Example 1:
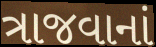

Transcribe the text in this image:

ત્રાજવાનાં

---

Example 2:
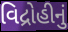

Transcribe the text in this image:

વિદ્રોહીનું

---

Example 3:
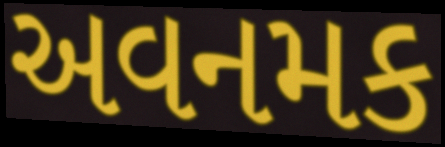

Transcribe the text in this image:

અવનમક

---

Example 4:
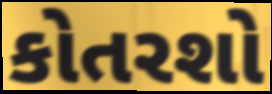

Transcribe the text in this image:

કોતરશો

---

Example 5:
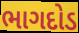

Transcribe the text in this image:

ભાગદોડ